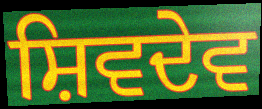
ਸ਼ਿਵਦੇਵ